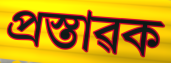
প্ৰস্তাৱক